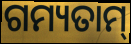
ଗମ୍ୟତାମ୍